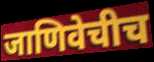
जाणिवेचीच